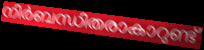
നിർബന്ധിതരാകാറുണ്ട്